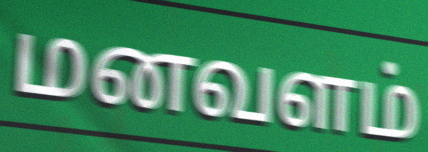
மனவளம்